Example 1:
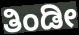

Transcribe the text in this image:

ತಿಂಡೀ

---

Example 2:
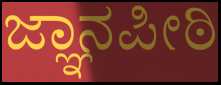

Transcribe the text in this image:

ಜ್ಞಾನಪೀಠಿ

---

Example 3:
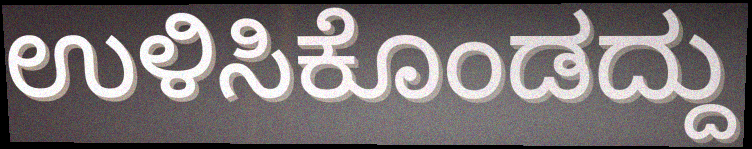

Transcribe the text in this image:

ಉಳಿಸಿಕೊಂಡದ್ದು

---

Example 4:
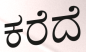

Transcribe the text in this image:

ಕರೆದೆ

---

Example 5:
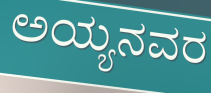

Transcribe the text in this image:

ಅಯ್ಯನವರ